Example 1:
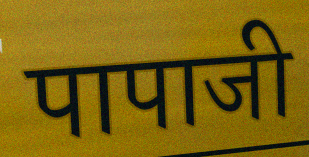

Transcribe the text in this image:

पापाजी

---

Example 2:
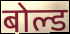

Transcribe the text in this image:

बोल्ड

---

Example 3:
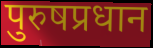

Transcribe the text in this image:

पुरुषप्रधान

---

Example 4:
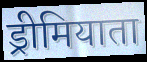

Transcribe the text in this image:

ड्रीमियाता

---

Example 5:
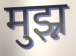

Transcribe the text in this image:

मुझ्न